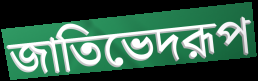
জাতিভেদরূপ